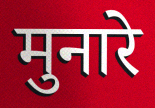
मुनारे